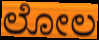
ಲೋಲ